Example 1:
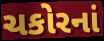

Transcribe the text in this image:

ચકોરનાં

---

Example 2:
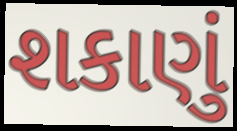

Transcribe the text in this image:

શકાણું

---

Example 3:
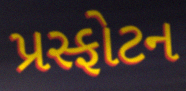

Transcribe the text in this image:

પ્રસ્ફોટન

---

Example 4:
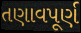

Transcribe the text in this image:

તણાવપૂર્ણ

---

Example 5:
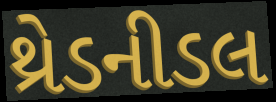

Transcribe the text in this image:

થ્રેડનીડલ